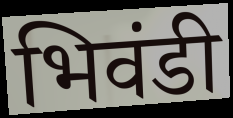
भिवंडी